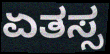
ಏತಸ್ಸ